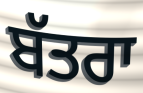
ਬੱਤਰਾ